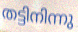
തട്ടിനിന്നു